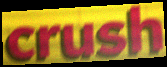
crush